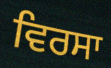
ਵਿਰਸਾ